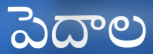
పెదాల